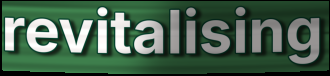
revitalising